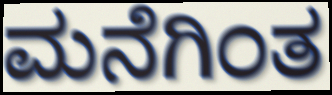
ಮನೆಗಿಂತ